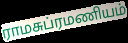
ராமசுப்ரமணியம்